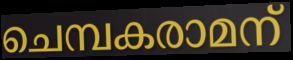
ചെമ്പകരാമന്